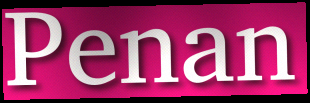
Penan